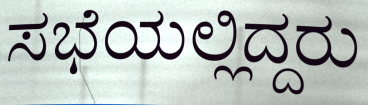
ಸಭೆಯಲ್ಲಿದ್ದರು